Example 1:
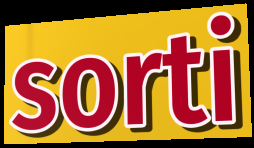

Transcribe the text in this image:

sorti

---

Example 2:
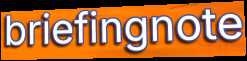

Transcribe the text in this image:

briefingnote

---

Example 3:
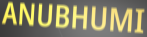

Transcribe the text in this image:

ANUBHUMI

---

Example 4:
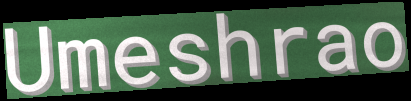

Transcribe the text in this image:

Umeshrao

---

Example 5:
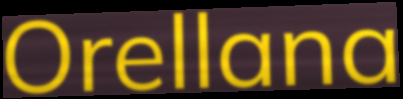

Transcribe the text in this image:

Orellana